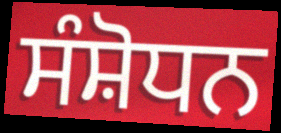
ਸੰਸ਼ੋਧਨ